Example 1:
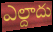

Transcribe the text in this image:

ఎల్దాదు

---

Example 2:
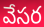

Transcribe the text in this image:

వేసర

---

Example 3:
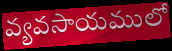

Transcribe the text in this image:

వ్యవసాయములో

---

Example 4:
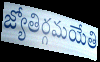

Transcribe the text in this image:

జ్యోతిర్గమయేతి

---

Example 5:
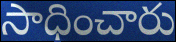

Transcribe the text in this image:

సాధించారు